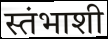
स्तंभाशी